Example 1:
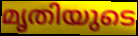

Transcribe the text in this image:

മൃതിയുടെ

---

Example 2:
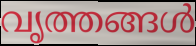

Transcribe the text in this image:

വൃത്തങ്ങൾ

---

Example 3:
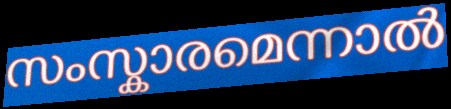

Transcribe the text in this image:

സംസ്കാരമെന്നാൽ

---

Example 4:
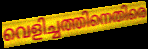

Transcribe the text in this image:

വെളിച്ചത്തിനെതിരെ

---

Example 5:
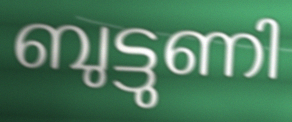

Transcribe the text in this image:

ബുട്ടുണി